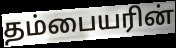
தம்பையரின்